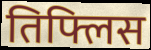
तिफ्लिस